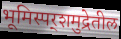
भूमिस्पर्शमुद्रेतील